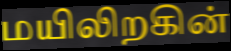
மயிலிறகின்